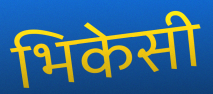
भिकेसी